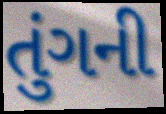
તુંગની